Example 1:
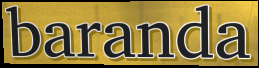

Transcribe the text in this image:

baranda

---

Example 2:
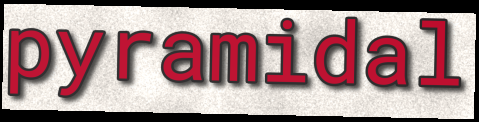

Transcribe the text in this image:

pyramidal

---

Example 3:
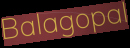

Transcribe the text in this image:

Balagopal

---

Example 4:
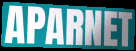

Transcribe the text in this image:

APARNET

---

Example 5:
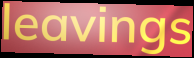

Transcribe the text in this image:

leavings